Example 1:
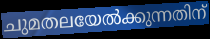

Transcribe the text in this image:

ചുമതലയേൽക്കുന്നതിന്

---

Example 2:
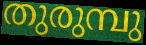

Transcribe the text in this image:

തുരുമ്പു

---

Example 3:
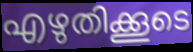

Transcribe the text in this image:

എഴുതിക്കൂടെ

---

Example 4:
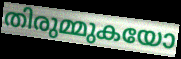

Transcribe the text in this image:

തിരുമ്മുകയോ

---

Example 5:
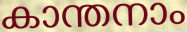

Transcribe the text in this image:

കാന്തനാം